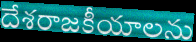
దేశరాజకీయాలను